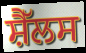
ਸ਼ੈੱਲਸ